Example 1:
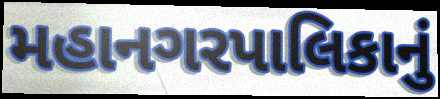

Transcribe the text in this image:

મહાનગરપાલિકાનું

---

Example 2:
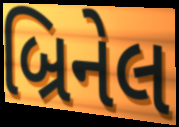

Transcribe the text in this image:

બ્રિનેલ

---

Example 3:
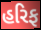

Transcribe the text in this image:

હરિફ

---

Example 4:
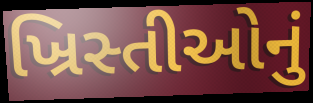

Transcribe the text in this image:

ખ્રિસ્તીઓનું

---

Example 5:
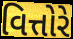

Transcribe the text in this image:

વિત્તોરે